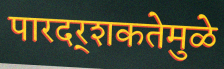
पारदर्शकतेमुळे